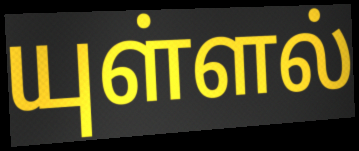
யுள்ளல்